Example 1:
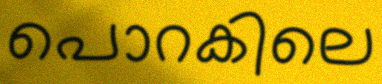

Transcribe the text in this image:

പൊറകിലെ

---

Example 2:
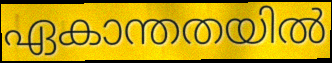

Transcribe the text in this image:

ഏകാന്തതയിൽ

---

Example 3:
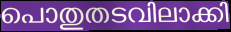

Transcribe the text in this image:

പൊതുതടവിലാക്കി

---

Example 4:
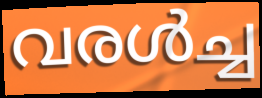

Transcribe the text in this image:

വരൾച്ച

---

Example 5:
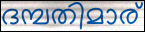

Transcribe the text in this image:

ദമ്പതിമാര്